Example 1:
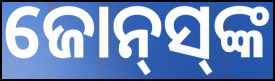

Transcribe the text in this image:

ଜୋନ୍‌ସ୍‌ଙ୍କ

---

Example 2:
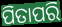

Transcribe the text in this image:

ପିତାପରି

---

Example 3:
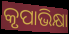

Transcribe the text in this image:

କୃପାଭିକ୍ଷା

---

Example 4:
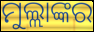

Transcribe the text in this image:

ମୁଲ୍ଲାଙ୍କର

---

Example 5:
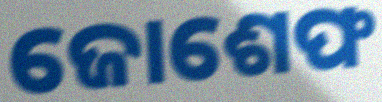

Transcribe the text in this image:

ଜୋଶେଫ